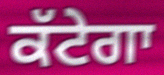
ਕੱਟੇਗਾ